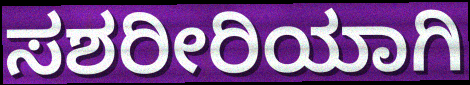
ಸಶರೀರಿಯಾಗಿ